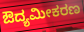
ಔದ್ಯಮೀಕರಣ